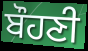
ਬੌਹਣੀ